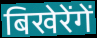
बिखेरेंगें